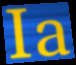
Ia